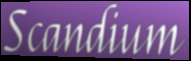
Scandium